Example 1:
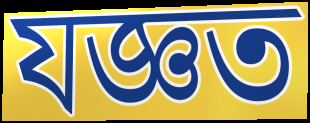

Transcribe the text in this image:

যজ্ঞত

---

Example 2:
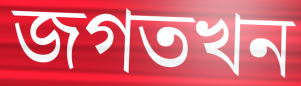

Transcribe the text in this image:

জগতখন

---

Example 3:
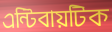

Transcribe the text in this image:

এন্টিবায়টিক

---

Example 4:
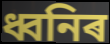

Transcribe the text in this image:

ধ্বনিৰ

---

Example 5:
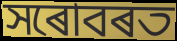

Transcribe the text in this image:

সৰোবৰত